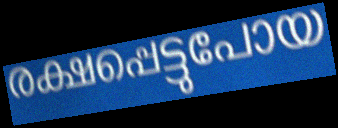
രക്ഷപ്പെട്ടുപോയ